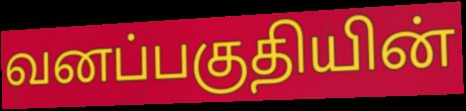
வனப்பகுதியின்